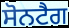
ਸੋਨਟੈਗ